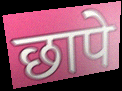
छापे